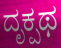
ದೃಕ್ಪಥ